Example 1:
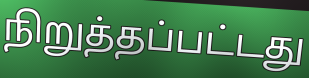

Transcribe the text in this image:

நிறுத்தப்பட்டது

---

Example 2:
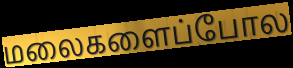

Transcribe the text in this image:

மலைகளைப்போல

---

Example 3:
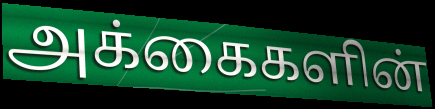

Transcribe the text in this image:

அக்கைகளின்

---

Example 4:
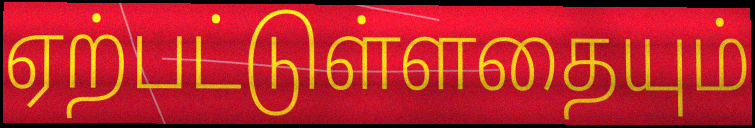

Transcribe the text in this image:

ஏற்பட்டுள்ளதையும்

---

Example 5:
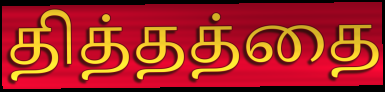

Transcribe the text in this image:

தித்தத்தை